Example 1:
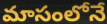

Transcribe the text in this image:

మాసంలోనే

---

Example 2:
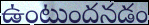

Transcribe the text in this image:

ఉంటుందనడం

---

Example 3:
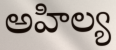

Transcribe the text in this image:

అహిల్య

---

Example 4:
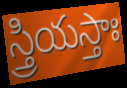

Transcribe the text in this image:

స్త్రియస్తాః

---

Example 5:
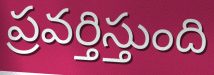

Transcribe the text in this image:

ప్రవర్తిస్తుంది